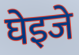
घेइजे